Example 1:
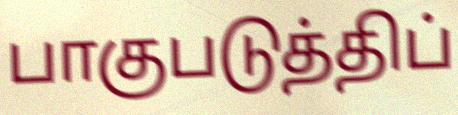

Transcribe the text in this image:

பாகுபடுத்திப்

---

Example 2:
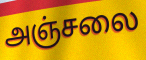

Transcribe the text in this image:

அஞ்சலை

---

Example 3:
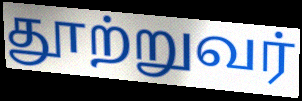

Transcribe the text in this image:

தூற்றுவர்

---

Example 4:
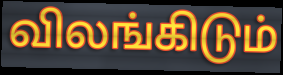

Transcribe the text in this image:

விலங்கிடும்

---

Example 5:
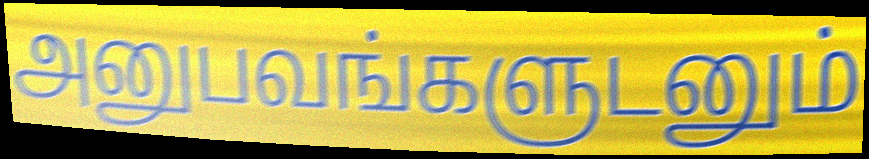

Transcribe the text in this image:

அனுபவங்களுடனும்